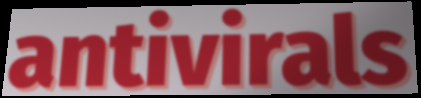
antivirals